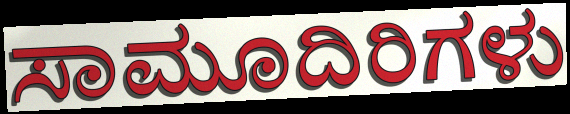
ಸಾಮೂದಿರಿಗಳು